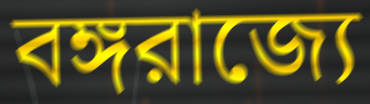
বঙ্গরাজ্যে